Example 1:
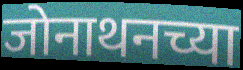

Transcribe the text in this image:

जोनाथनच्या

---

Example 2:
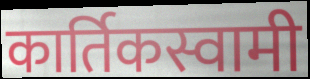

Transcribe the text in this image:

कार्तिकस्वामी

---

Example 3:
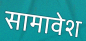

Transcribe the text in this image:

सामावेश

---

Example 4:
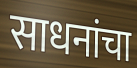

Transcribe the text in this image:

साधनांचा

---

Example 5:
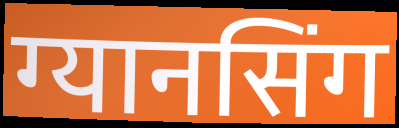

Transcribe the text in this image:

ग्यानसिंग